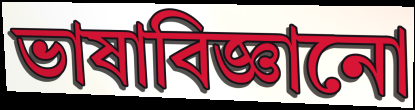
ভাষাবিজ্ঞানো